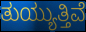
ತುಯ್ಯುತ್ತಿವೆ